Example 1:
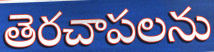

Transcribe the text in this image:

తెరచాపలను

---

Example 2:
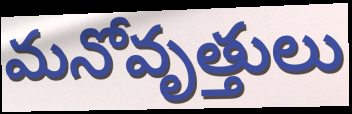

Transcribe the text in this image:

మనోవృత్తులు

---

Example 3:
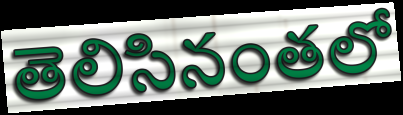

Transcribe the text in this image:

తెలిసినంతలో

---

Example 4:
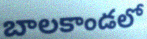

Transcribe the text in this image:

బాలకాండలో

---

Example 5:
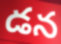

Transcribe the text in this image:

డన